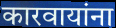
कारवायांना